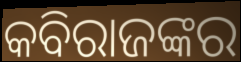
କବିରାଜଙ୍କର